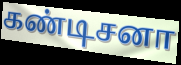
கண்டிசனா